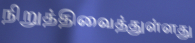
நிறுத்திவைத்துள்ளது